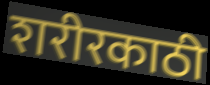
शरीरकाठी